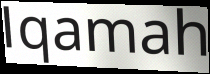
Iqamah